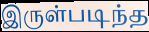
இருள்படிந்த